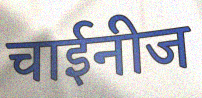
चाईनीज